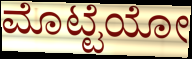
ಮೊಟ್ಟೆಯೋ